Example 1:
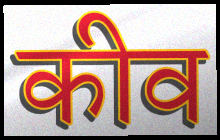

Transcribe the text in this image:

कीव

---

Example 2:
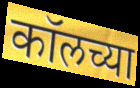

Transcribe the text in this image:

कॉलच्या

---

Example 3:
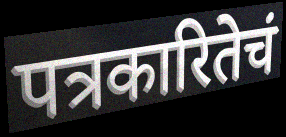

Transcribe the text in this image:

पत्रकारितेचं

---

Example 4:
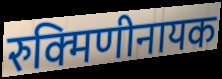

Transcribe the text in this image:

रुक्मिणीनायक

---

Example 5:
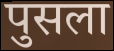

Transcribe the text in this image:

पुसला